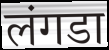
लंगडा